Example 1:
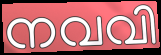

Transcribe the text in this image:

നവവി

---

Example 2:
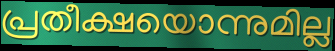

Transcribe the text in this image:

പ്രതീക്ഷയൊന്നുമില്ല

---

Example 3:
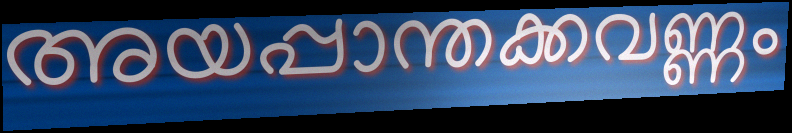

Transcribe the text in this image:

അയപ്പാന്തക്കവണ്ണം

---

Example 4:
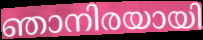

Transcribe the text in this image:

ഞാനിരയായി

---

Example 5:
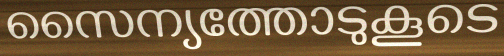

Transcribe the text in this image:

സൈന്യത്തോടുകൂടെ